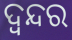
ଦ୍ବନ୍ଦର